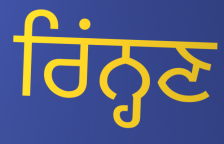
ਰਿਂਨ੍ਹਣ